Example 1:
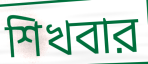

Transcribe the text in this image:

শিখবার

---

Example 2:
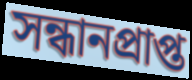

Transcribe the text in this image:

সন্ধানপ্রাপ্ত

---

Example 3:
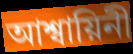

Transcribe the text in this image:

আশ্বায়িনী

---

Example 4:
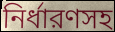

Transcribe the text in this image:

নির্ধারণসহ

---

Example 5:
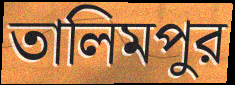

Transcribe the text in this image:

তালিমপুর